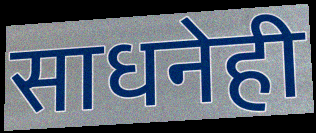
साधनेही